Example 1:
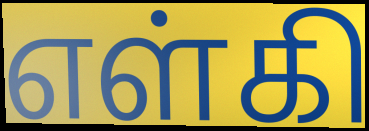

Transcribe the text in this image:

எள்கி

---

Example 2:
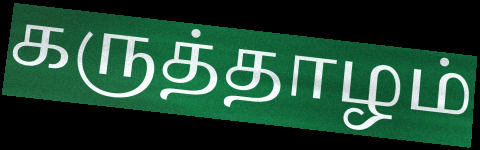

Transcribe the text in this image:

கருத்தாழம்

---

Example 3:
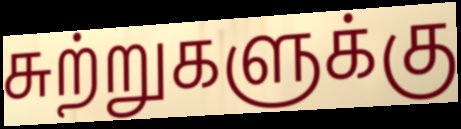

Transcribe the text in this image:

சுற்றுகளுக்கு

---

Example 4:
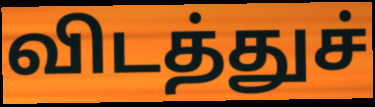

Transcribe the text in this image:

விடத்துச்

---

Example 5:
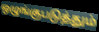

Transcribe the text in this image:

ஒழுங்குபடுத்தும்